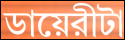
ডায়েরীটা